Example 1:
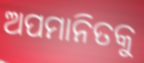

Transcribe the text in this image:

ଅପମାନିତକୁ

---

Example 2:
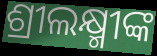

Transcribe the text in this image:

ଶ୍ରୀଲକ୍ଷ୍ମୀଙ୍କ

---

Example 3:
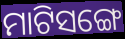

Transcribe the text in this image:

ମାଟିସଙ୍ଗେ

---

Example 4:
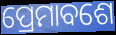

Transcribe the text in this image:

ପ୍ରେମାବଶେ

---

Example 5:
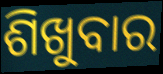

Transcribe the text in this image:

ଶିଖୁବାର